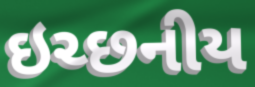
ઇચ્છનીય